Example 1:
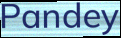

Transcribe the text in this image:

Pandey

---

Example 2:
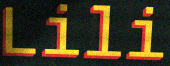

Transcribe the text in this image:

Lili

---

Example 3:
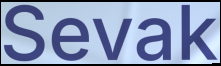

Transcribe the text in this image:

Sevak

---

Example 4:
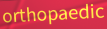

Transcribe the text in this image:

orthopaedic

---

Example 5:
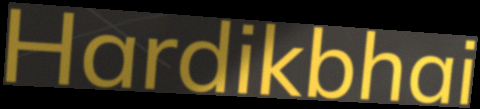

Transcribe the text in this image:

Hardikbhai